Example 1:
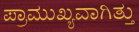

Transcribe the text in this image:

ಪ್ರಾಮುಖ್ಯವಾಗಿತ್ತು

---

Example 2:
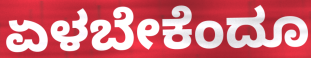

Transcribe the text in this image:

ಏಳಬೇಕೆಂದೂ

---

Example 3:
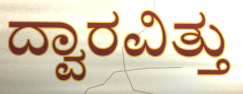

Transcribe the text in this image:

ದ್ವಾರವಿತ್ತು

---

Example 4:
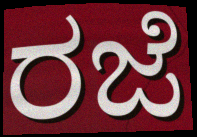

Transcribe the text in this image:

ರಜೆ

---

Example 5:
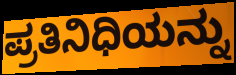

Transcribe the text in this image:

ಪ್ರತಿನಿಧಿಯನ್ನು